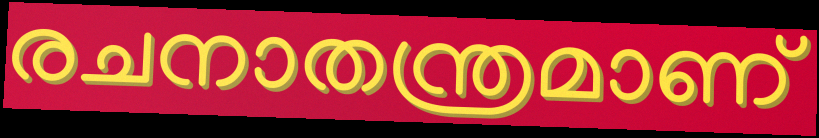
രചനാതന്ത്രമാണ്